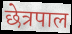
छेत्रपाल